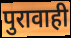
पुरावाही